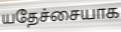
யதேச்சையாக